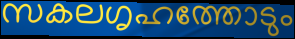
സകലഗൃഹത്തോടും